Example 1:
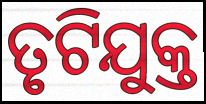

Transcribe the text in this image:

ତୃଟିଯୁକ୍ତ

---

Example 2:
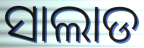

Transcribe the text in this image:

ସାଲାଡ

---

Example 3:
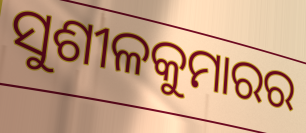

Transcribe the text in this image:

ସୁଶୀଳକୁମାରର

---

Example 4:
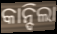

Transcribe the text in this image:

କାନ୍ଦିଲା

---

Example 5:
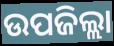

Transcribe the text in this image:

ଉପଜିଲ୍ଲା